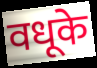
वधूके